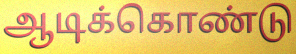
ஆடிக்கொண்டு